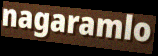
nagaramlo